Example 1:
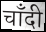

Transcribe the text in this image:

चाँदी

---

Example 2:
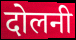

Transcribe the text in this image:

दोलनी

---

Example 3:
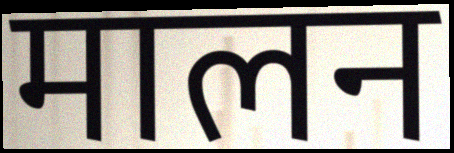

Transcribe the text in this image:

मालन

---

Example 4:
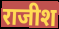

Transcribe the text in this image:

राजीश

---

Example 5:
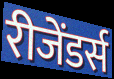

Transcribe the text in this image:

रीजेंडर्स